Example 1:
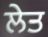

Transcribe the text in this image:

ਲੇਤ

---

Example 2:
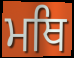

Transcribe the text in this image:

ਮਥਿ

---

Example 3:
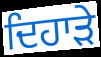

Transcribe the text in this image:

ਦਿਹਾਡ਼ੇ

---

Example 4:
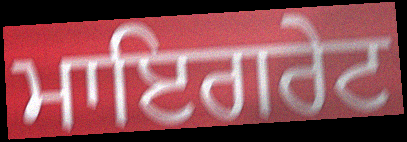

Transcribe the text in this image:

ਮਾਇਗਰੇਟ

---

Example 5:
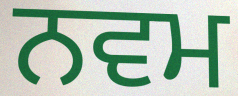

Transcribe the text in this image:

ਨਵਮ